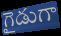
గైడుగా